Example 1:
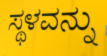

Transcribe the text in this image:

ಸ್ಥಳವನ್ನು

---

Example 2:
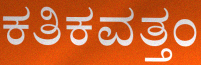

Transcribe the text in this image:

ಕತಿಕವತ್ತಂ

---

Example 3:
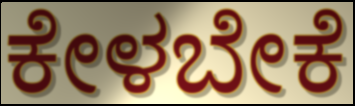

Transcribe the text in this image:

ಕೇಳಬೇಕೆ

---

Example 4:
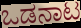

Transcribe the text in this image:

ಒಡನಾಟ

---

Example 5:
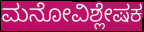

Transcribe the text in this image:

ಮನೋವಿಶ್ಲೇಷಕ